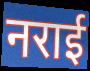
नराई